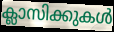
ക്ലാസിക്കുകൾ